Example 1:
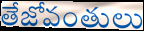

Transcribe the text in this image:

తేజోవంతులు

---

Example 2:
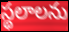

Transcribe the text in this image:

స్థలాలను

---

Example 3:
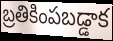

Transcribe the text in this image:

బ్రతికింపబడ్డాక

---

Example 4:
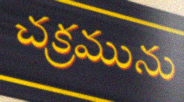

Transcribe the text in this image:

చక్రమును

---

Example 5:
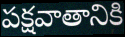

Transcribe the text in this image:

పక్షవాతానికి